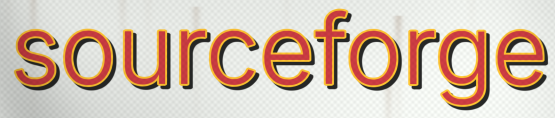
sourceforge